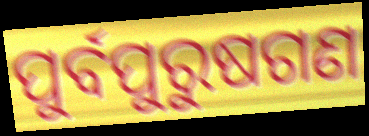
ପୁର୍ବପୁରୁଷଗଣ